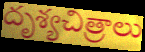
దృశ్యచిత్రాలు